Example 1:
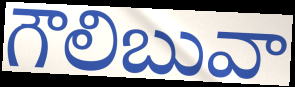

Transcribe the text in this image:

గౌలిబువా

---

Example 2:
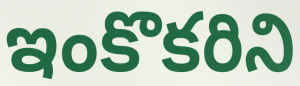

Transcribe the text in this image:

ఇంకొకరిని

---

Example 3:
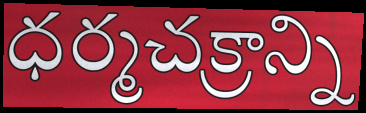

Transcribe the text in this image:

ధర్మచక్రాన్ని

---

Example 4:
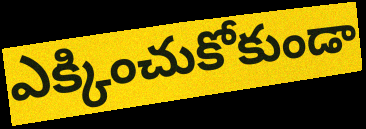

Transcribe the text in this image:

ఎక్కించుకోకుండా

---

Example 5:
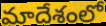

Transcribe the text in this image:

మాదేశంలో